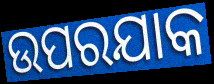
ଉପରଯାକ